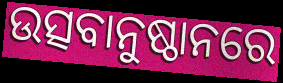
ଉତ୍ସବାନୁଷ୍ଠାନରେ